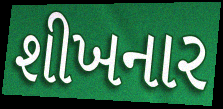
શીખનાર